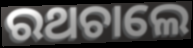
ରଥଚାଲେ